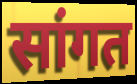
सांगत